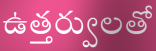
ఉత్తర్వులతో